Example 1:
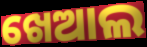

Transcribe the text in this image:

ଖେଆଲ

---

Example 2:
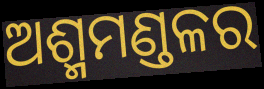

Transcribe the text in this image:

ଅଶ୍ମମଣ୍ଡଳର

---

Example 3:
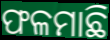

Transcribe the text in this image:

ଫଳମାଛି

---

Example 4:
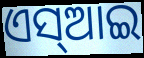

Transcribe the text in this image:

ଏସ୍ଆଇ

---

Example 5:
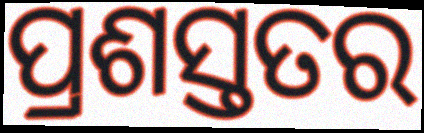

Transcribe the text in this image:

ପ୍ରଶସ୍ତତର